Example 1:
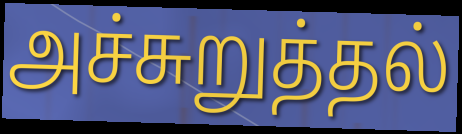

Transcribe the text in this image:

அச்சுறுத்தல்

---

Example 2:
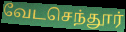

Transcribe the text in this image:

வேடசெந்தூர்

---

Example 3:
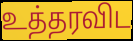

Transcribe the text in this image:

உத்தரவிட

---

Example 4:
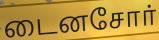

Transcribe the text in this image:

டைனசோர்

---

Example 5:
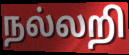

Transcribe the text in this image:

நல்லறி